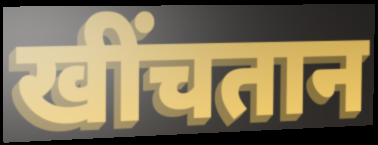
खींचतान